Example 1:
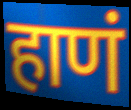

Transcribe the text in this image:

हाणं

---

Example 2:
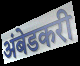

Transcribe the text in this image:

अंबेडकरी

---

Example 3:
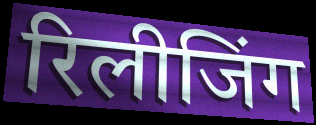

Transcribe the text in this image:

रिलीजिंग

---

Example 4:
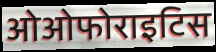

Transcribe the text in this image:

ओओफोराइटिस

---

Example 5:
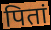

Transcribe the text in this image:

पितां